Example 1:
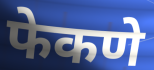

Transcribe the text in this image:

फेकणे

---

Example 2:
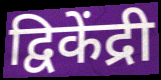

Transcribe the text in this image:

द्विकेंद्री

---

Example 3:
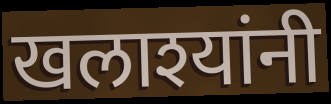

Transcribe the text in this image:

खलाश्यांनी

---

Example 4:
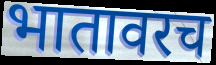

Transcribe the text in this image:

भातावरच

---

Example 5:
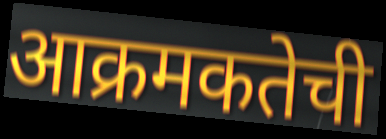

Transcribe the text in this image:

आक्रमकतेची